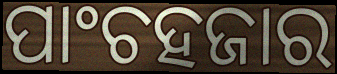
ପାଂଚହଜାର